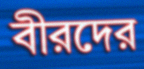
বীরদের